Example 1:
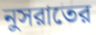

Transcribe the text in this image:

নুসরাতের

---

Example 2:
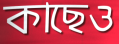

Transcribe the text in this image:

কাছেও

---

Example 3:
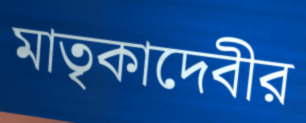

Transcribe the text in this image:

মাতৃকাদেবীর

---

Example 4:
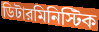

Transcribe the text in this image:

ডিটারমিনিস্টিক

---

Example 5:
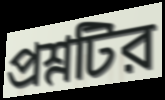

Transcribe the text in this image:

প্রশ্নটির